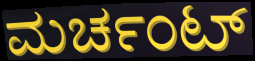
ಮರ್ಚಂಟ್